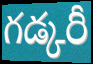
గడ్కరీ